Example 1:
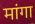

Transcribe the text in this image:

मांगा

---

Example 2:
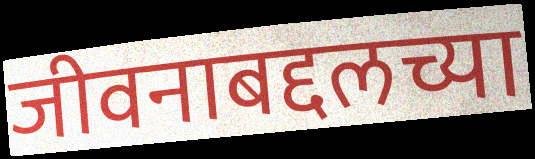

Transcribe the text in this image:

जीवनाबद्दलच्या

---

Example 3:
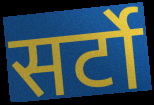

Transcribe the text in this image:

सर्टो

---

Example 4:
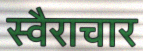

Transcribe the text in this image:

स्वैराचार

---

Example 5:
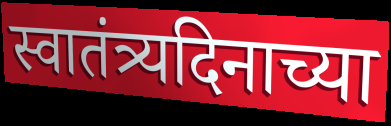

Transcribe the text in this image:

स्वातंत्र्यदिनाच्या